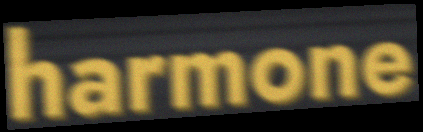
harmone